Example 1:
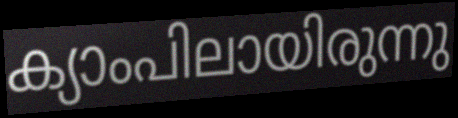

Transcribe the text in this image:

ക്യാംപിലായിരുന്നു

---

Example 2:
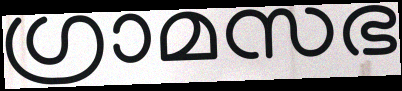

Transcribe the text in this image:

ഗ്രാമസഭ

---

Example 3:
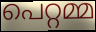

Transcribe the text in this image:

പെറ്റമ്മ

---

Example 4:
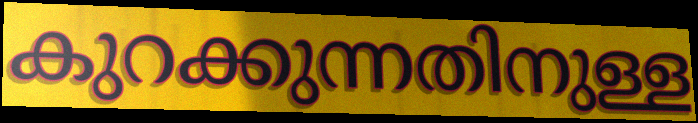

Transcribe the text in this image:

കുറക്കുന്നതിനുള്ള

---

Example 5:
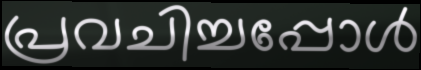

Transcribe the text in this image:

പ്രവചിച്ചപ്പോൾ